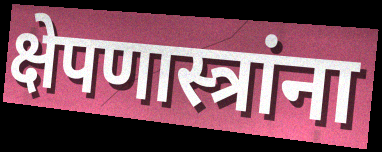
क्षेपणास्त्रांना